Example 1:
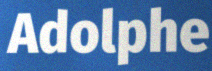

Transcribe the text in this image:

Adolphe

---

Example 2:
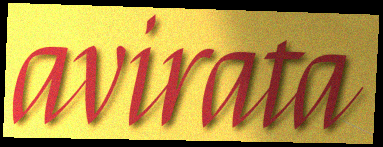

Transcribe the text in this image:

avirata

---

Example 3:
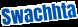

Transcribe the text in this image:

Swachhta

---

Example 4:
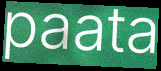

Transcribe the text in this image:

paata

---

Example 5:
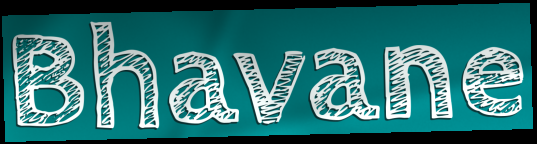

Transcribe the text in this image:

Bhavane